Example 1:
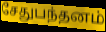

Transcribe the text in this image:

சேதுபந்தனம்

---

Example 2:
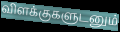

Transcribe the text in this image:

விளக்குகளுடனும்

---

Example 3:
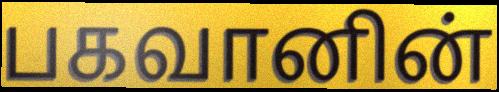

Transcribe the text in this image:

பகவானின்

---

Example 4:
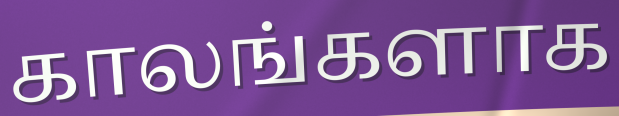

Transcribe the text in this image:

காலங்களாக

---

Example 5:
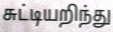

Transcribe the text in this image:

சுட்டியறிந்து